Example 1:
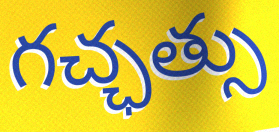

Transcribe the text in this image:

గచ్ఛత్సు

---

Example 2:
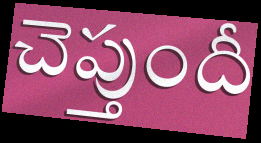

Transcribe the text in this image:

చెప్తుందీ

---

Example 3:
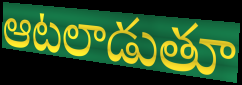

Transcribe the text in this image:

ఆటలాడుతూ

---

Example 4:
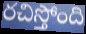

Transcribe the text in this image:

రచిస్తోంది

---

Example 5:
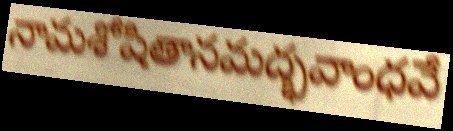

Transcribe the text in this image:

నామశోషితానమద్భవాంధవే